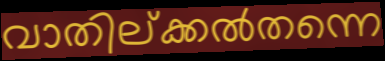
വാതില്ക്കൽതന്നെ